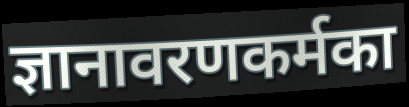
ज्ञानावरणकर्मका